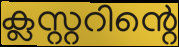
ക്ലസ്റ്ററിന്റെ